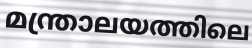
മന്ത്രാലയത്തിലെ